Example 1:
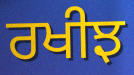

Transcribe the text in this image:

ਰਖੀਝ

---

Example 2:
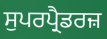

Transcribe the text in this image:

ਸੁਪਰਪ੍ਰੈਡਰਜ਼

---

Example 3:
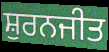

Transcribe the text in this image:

ਸ਼ੁਰਨਜੀਤ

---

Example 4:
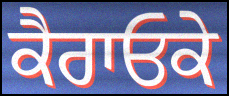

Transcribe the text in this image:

ਕੈਰਾਓਕੇ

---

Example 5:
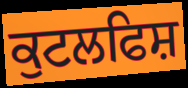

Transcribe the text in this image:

ਕੁਟਲਫਿਸ਼